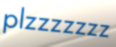
plzzzzzzz